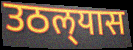
उठल्यास